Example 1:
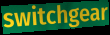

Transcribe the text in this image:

switchgear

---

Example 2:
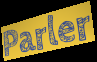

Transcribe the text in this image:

Parler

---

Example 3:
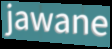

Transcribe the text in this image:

jawane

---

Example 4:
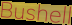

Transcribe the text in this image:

Bushell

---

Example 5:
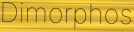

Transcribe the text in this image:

Dimorphos